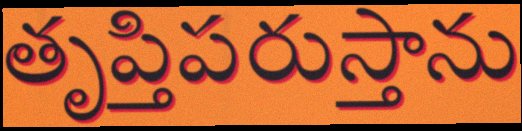
తృప్తిపరుస్తాను